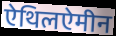
ऐथिलऐमीन